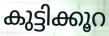
കുട്ടിക്കൂറ